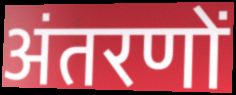
अंतरणों